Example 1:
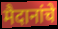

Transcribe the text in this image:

मैदानांचे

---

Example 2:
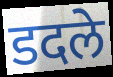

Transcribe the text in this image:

डदले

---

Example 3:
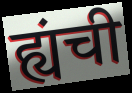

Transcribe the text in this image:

ह्यंची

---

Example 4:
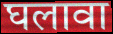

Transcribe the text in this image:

घलावा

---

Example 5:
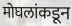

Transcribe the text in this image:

मोघलांकडून